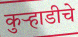
कुऱ्हाडीचे